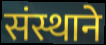
संस्थाने